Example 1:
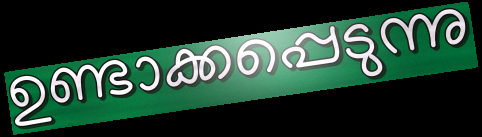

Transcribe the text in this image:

ഉണ്ടാക്കപ്പെടുന്നു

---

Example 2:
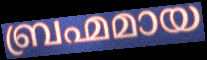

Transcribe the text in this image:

ബ്രഹ്മമായ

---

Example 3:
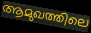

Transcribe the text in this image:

ആമുഖത്തിലെ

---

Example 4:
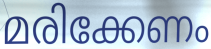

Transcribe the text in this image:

മരിക്കേണം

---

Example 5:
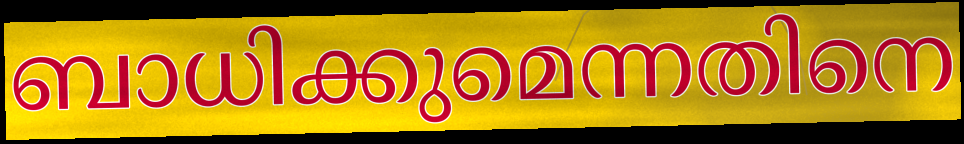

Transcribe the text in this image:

ബാധിക്കുമെന്നതിനെ